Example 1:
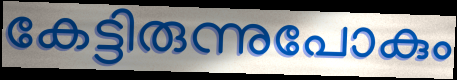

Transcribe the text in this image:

കേട്ടിരുന്നുപോകും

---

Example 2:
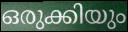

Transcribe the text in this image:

ഒരുക്കിയും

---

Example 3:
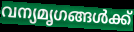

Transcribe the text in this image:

വന്യമൃഗങ്ങൾക്ക്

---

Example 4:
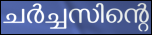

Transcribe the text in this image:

ചർച്ചസിന്റെ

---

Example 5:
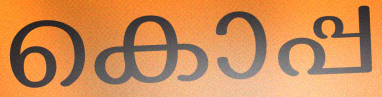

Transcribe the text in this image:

കൊപ്പ